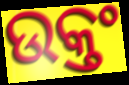
ଉକ୍ତଂ